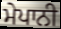
ਮੇਪਾਨੀ